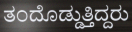
ತಂದೊಡ್ಡುತ್ತಿದ್ದರು